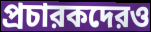
প্রচারকদেরও